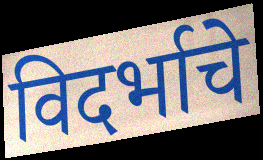
विदर्भाचे